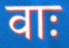
वाः